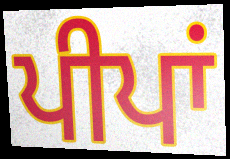
ਪੀਪਾਂ